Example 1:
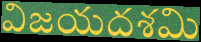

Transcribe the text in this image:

విజయదశమి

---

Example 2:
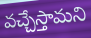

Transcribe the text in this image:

వచ్చేస్తామని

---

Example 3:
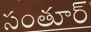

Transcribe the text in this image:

సంతూర్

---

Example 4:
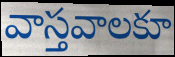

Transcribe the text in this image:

వాస్తవాలకూ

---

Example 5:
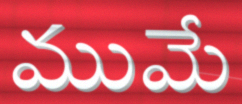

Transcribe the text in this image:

ముమే